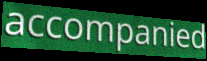
accompanied